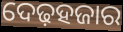
ଦେଢ଼ହଜାର